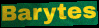
Barytes